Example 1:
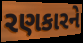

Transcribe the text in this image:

રણકારને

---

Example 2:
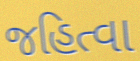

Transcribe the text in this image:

જહિત્વા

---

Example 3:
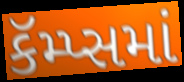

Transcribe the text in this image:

કૅમ્પ્સમાં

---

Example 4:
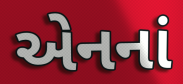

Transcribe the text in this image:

એનનાં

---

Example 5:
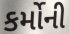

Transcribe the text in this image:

કર્મોની